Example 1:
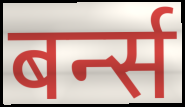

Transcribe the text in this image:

बर्न्स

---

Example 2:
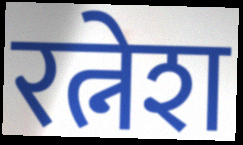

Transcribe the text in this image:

रत्नेश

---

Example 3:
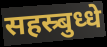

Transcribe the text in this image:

सहस्र्बुध्धे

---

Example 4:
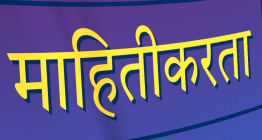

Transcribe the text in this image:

माहितीकरता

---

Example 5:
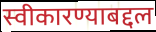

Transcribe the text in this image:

स्वीकारण्याबद्दल